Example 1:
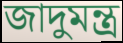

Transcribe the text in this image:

জাদুমন্ত্র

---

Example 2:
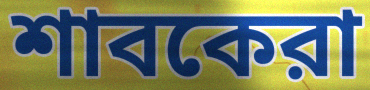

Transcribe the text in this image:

শাবকেরা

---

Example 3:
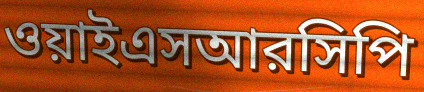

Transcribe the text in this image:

ওয়াইএসআরসিপি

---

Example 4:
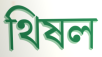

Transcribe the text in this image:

থিষল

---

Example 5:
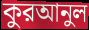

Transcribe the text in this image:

কুরআনুল